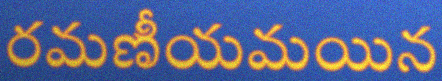
రమణీయమయిన